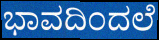
ಭಾವದಿಂದಲೆ